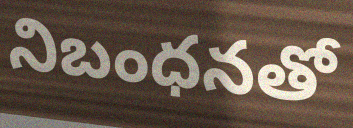
నిబంధనతో